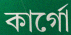
কার্গো